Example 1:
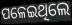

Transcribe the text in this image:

ପଳେଇଥିଲେ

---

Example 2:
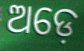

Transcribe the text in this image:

ଅଡ଼େ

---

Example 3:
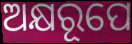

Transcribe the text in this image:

ଅକ୍ଷରୂପେ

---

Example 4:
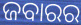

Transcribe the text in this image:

ଜବାରର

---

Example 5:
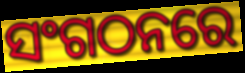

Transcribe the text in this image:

ସଂଗଠନରେ